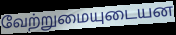
வேற்றுமையுடையன